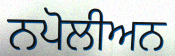
ਨਪੋਲੀਅਨ